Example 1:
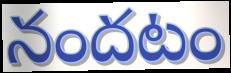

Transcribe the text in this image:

నందటం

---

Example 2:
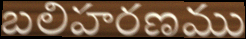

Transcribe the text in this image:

బలిహరణము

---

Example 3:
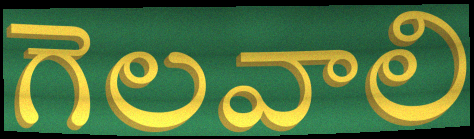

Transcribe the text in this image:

గెలవాలి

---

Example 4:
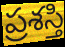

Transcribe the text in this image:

ప్రశస్తి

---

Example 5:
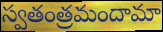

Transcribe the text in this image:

స్వతంత్రమందామా